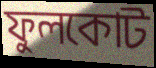
ফুলকোট